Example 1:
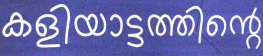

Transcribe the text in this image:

കളിയാട്ടത്തിന്റെ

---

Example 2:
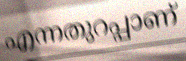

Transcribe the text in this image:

എന്നതുറപ്പാണ്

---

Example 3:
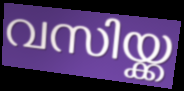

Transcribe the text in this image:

വസിയ്ക്ക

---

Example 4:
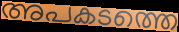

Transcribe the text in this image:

അപകടത്തെ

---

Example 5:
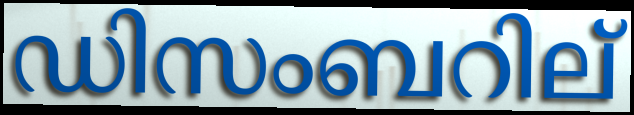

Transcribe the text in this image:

ഡിസംബറില്